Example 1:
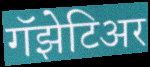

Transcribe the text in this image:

गॅझेटिअर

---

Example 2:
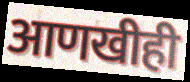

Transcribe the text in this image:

आणखीही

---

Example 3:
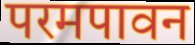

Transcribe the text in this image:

परमपावन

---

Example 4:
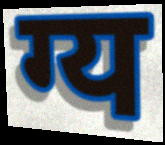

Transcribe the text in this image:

ग्य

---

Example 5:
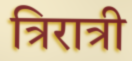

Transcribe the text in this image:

त्रिरात्री